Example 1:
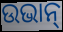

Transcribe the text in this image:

ଉଭାନ୍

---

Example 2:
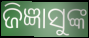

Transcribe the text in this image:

ଜିଜ୍ଞାସୁଙ୍କ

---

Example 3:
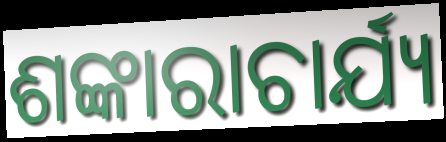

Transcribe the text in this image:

ଶଙ୍କାରାଚାର୍ଯ୍ୟ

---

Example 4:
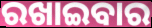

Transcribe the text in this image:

ରଖାଇବାର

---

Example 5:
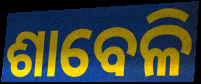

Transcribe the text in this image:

ଶାବେଳି